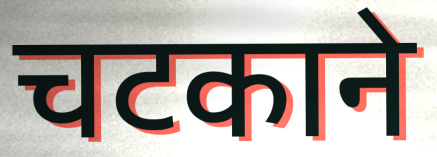
चटकाने